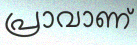
പ്രാവാണ്